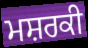
ਮਸ਼ਰਕੀ